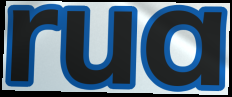
rua